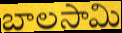
బాలసామి